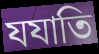
যযাতি